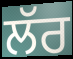
ਲੱਰ